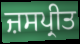
ਜ਼ਸਪ੍ਰੀਤ